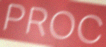
PROC